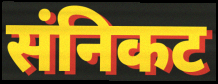
संनिकट